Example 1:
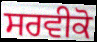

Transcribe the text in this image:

ਸਰਵੀਕੋ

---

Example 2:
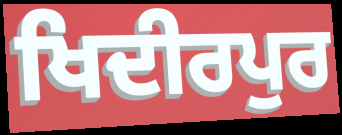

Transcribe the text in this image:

ਖਿਦੀਰਪੁਰ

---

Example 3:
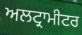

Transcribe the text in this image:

ਅਲਟ੍ਰਾਮੀਟਰ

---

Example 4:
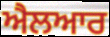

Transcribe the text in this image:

ਐਲਆਰ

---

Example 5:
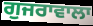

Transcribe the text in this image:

ਗੁਜਰਾਵਾਲਾ